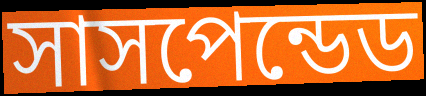
সাসপেন্ডেড